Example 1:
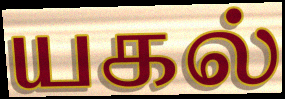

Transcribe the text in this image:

யகல்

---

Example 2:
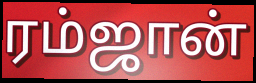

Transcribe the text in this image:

ரம்ஜான்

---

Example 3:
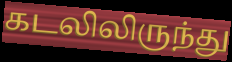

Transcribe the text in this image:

கடலிலிருந்து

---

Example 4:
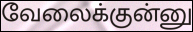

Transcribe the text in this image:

வேலைக்குன்னு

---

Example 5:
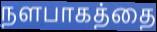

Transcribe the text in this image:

நளபாகத்தை